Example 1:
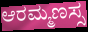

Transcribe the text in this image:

ಆರಮ್ಮಣಸ್ಸ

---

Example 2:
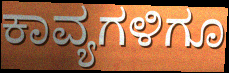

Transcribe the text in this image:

ಕಾವ್ಯಗಳಿಗೂ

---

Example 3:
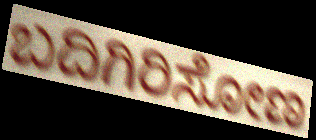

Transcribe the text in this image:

ಬದಿಗಿರಿಸೋಣ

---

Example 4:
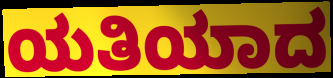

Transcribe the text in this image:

ಯತಿಯಾದ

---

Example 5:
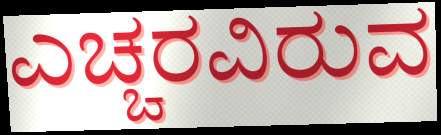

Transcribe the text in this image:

ಎಚ್ಚರವಿರುವ